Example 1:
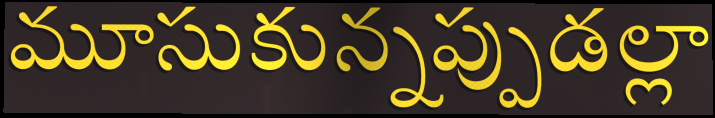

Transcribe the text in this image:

మూసుకున్నప్పుడల్లా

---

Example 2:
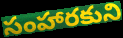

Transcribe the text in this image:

సంహారకుని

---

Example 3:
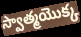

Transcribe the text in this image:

స్వాత్మయొక్క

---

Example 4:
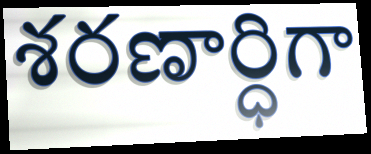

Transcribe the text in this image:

శరణార్ధిగా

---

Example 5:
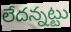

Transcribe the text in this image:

లేదన్నట్టు